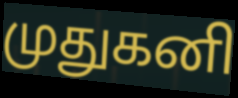
முதுகனி